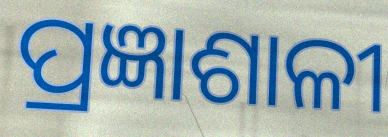
ପ୍ରଜ୍ଞାଶାଳୀ